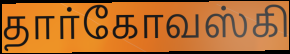
தார்கோவஸ்கி